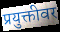
प्रयुक्तीवर